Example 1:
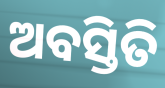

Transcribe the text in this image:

ଅବସ୍ତିତି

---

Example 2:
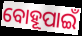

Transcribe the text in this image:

ବୋହୂପାଇଁ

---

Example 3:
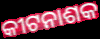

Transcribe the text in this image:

କୀଟନାଶକ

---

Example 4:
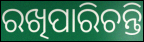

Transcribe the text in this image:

ରଖିପାରିଚନ୍ତି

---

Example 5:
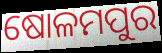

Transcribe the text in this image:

ଷୋଳମପୁର